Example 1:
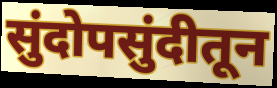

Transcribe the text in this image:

सुंदोपसुंदीतून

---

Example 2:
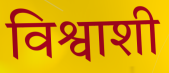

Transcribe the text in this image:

विश्वाशी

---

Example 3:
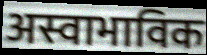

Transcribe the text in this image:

अस्वाभाविक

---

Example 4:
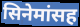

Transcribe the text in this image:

सिनेमांसह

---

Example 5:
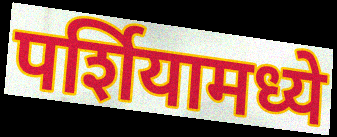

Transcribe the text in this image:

पर्शियामध्ये